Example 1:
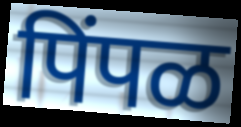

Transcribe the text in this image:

पिंपळ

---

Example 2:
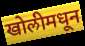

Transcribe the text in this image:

खोलीमधून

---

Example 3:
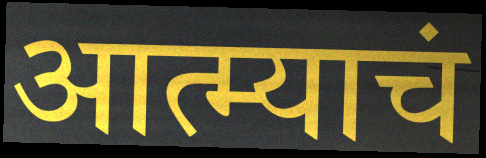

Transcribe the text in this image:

आत्म्याचं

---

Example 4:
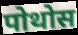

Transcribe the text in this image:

पोथोस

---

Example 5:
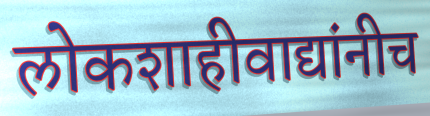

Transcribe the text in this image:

लोकशाहीवाद्यांनीच